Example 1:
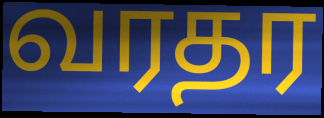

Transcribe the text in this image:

வரதர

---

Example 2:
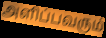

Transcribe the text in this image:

அளிப்பவரும்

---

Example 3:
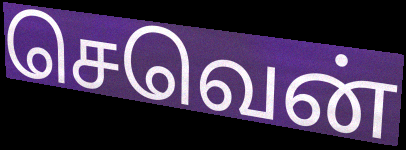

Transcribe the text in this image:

செவென்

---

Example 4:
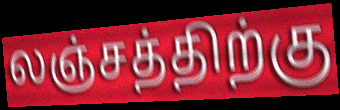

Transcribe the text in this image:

லஞ்சத்திற்கு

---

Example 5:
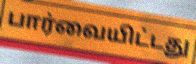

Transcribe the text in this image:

பார்வையிட்டது